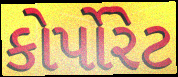
કોર્પોરેટ